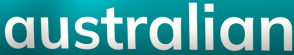
australian